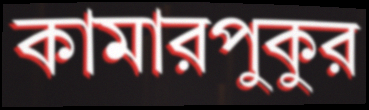
কামারপুকুর